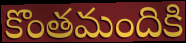
కొంతమందికి